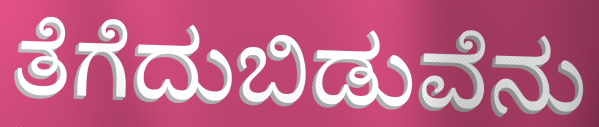
ತೆಗೆದುಬಿಡುವೆನು